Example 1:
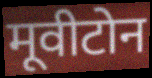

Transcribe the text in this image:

मूवीटोन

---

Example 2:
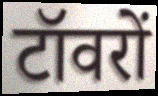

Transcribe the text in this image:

टॉवरों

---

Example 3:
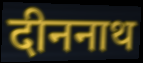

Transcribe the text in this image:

दीननाथ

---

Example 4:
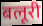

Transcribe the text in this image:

बलूरी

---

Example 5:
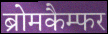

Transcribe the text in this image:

ब्रोमकैम्फर